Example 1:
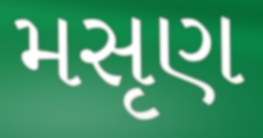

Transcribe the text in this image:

મસૃણ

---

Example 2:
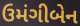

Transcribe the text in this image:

ઉમંગીબેન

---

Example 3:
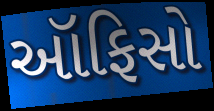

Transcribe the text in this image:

ઑફિસો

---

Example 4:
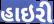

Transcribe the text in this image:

હાઇરી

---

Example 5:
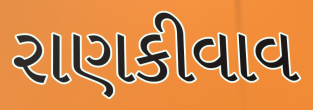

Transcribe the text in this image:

રાણકીવાવ